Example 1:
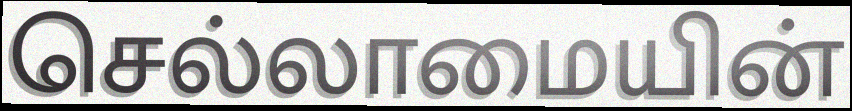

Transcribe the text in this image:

செல்லாமையின்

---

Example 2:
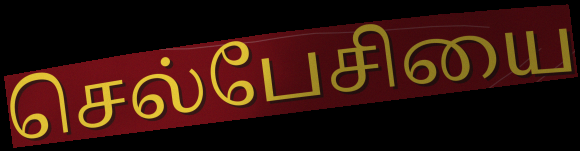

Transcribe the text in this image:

செல்பேசியை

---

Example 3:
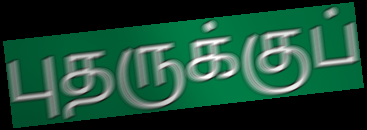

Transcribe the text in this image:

புதருக்குப்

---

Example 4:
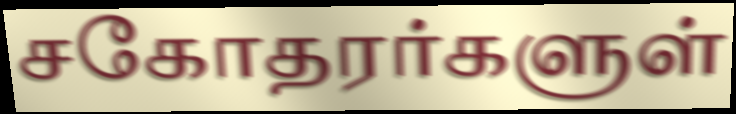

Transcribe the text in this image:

சகோதரர்களுள்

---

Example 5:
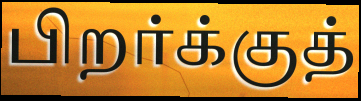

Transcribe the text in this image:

பிறர்க்குத்